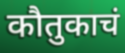
कौतुकाचं